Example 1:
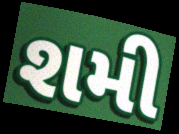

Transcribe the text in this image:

શમી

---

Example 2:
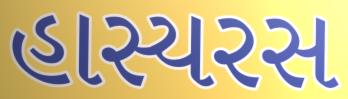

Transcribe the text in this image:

હાસ્યરસ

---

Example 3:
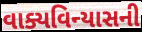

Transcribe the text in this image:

વાક્યવિન્યાસની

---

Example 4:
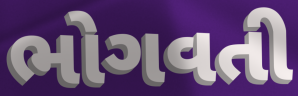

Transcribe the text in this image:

ભોગવતી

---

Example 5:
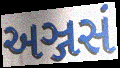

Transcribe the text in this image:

અઞ્જસં